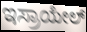
ಇಸ್ರಾಯೇಲ್